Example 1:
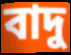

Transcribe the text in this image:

বাদু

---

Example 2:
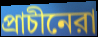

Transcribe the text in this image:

প্রাচীনেরা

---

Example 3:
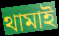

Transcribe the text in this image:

থামাই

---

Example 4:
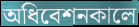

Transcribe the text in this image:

অধিবেশনকালে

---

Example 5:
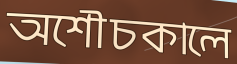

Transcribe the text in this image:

অশৌচকালে